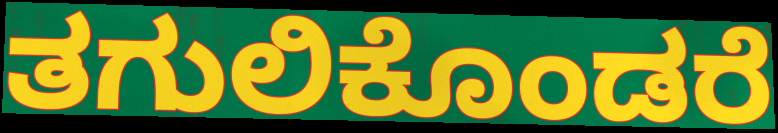
ತಗುಲಿಕೊಂಡರೆ